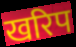
खरिप